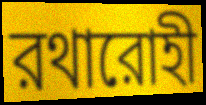
রথারোহী